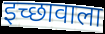
इच्छावाला